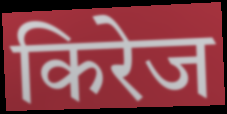
किरेज